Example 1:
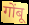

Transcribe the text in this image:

गोंबू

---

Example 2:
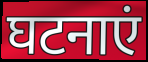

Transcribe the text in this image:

घटनाएं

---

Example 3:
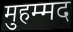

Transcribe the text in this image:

मुहम्मद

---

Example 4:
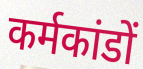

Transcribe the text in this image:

कर्मकांडों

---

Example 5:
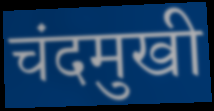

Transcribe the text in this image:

चंदमुखी